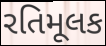
રતિમૂલક